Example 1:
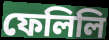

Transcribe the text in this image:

ফেলিলি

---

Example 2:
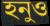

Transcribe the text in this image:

হনুও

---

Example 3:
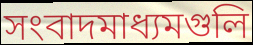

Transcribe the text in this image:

সংবাদমাধ্যমগুলি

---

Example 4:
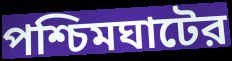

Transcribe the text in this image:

পশ্চিমঘাটের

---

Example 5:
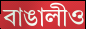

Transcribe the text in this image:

বাঙালীও